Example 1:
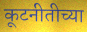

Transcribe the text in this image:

कूटनीतीच्या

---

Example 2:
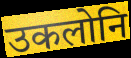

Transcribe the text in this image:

उकलोनि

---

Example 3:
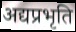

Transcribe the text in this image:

अद्यप्रभृति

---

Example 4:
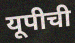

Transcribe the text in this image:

यूपीची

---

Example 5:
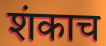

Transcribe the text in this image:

शंकाच